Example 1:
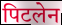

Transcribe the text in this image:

पिटलेन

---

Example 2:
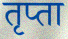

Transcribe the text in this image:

तृप्ता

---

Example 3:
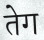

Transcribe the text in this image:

तेग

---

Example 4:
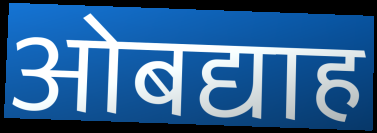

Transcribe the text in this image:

ओबद्याह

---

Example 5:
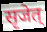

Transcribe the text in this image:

सृजेत्